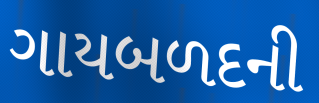
ગાયબળદની